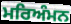
ਮਰਿਅੰਮਨ